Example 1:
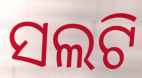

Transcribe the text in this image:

ସଲଟି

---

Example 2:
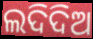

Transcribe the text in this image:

ଲଦିଦିଅ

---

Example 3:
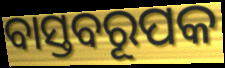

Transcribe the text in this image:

ବାସ୍ତବରୂପକ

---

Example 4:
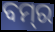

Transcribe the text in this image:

ବମ୍‌ର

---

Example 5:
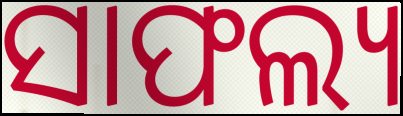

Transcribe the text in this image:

ସାଫଲ୍ଯ